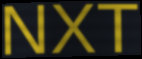
NXT